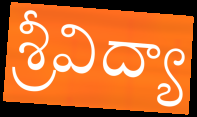
శ్రీవిద్యా